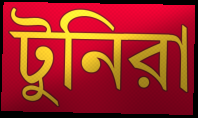
টুনিরা